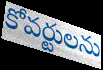
కోవర్టులను